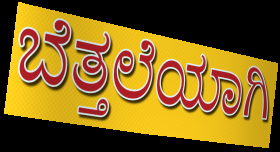
ಬೆತ್ತಲೆಯಾಗಿ